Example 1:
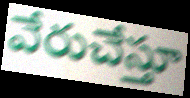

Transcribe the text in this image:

వేరుచేస్తూ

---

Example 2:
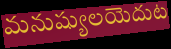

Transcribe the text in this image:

మనుష్యులయెదుట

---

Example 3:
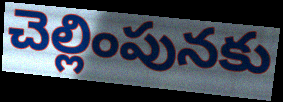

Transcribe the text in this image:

చెల్లింపునకు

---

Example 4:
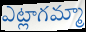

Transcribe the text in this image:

ఎట్లాగమ్మా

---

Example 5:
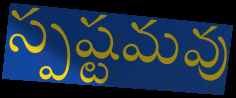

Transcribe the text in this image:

స్పష్టమవు